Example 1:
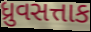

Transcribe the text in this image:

ધ્રુવસત્તાક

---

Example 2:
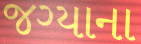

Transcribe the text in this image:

જગ્યાના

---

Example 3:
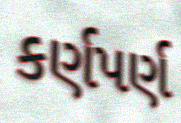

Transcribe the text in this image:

કર્ણપર્ણ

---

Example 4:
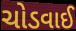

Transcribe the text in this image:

ચોડવાઈ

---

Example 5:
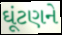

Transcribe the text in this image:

ઘૂંટણને